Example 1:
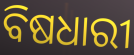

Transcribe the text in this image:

ବିଷଧାରୀ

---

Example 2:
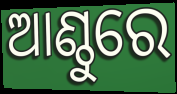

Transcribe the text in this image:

ଆଣ୍ଠୁରେ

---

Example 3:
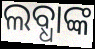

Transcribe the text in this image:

ଲବ୍ଧାଙ୍କ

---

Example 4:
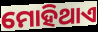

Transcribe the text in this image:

ମୋହିଥାଏ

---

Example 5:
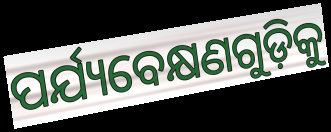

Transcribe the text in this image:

ପର୍ଯ୍ୟବେକ୍ଷଣଗୁଡ଼ିକୁ